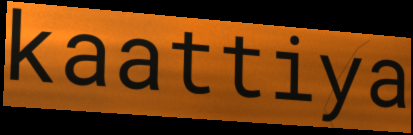
kaattiya